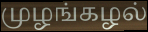
முழங்கழல்